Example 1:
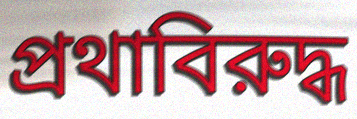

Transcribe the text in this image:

প্রথাবিরুদ্ধ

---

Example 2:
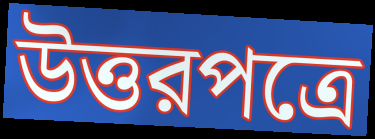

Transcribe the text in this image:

উত্তরপত্রে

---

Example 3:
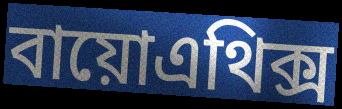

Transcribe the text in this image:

বায়োএথিক্স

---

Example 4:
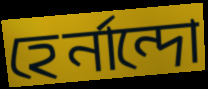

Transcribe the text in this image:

হের্নান্দো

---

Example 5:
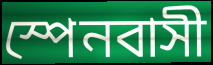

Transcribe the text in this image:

স্পেনবাসী